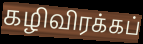
கழிவிரக்கப்